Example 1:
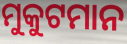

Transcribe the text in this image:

ମୁକୁଟମାନ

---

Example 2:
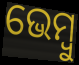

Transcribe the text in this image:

ଭେମ୍ବୁ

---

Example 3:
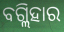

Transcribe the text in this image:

ବଗ୍ଲିହାର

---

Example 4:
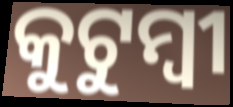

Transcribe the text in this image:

କୁଟୁମ୍ବୀ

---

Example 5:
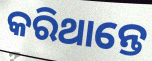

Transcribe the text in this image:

କରିଥାନ୍ତେ